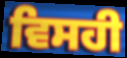
ਵਿਸਹੀ